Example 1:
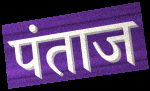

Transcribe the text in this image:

पंताज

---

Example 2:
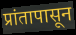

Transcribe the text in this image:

प्रांतापासून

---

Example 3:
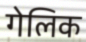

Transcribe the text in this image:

गेलिक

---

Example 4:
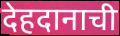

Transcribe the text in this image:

देहदानाची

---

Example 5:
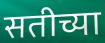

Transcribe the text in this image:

सतीच्या